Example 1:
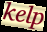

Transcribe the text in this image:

kelp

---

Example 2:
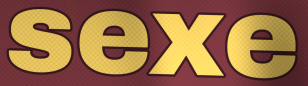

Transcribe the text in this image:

sexe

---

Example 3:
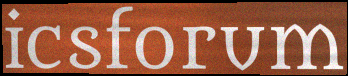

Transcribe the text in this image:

icsforum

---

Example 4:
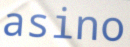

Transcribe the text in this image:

asino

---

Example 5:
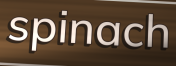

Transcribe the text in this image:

spinach